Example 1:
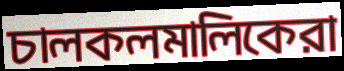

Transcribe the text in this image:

চালকলমালিকেরা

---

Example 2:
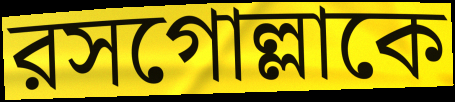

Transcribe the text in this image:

রসগোল্লাকে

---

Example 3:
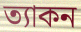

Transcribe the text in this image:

ত্যাকন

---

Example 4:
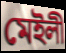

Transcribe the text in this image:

মেইলী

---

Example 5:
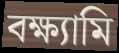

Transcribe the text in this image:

বক্ষ্যামি